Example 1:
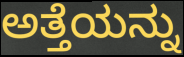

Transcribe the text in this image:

ಅತ್ತೆಯನ್ನು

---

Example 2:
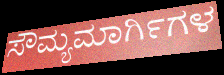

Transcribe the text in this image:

ಸೌಮ್ಯಮಾರ್ಗಿಗಳ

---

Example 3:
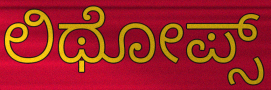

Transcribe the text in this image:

ಲಿಥೋಪ್ಸ್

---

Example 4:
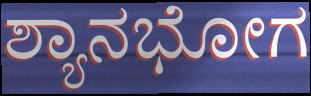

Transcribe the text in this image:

ಶ್ಯಾನಭೋಗ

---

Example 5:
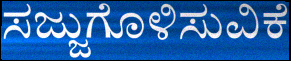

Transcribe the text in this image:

ಸಜ್ಜುಗೊಳಿಸುವಿಕೆ